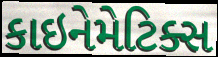
કાઇનેમેટિક્સ